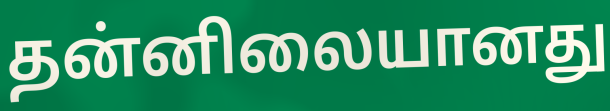
தன்னிலையானது